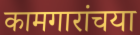
कामगारांचया